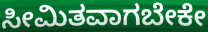
ಸೀಮಿತವಾಗಬೇಕೇ